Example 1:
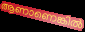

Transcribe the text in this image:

ആണാണെങ്കിൽ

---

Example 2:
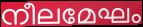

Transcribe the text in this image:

നീലമേഘം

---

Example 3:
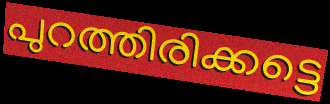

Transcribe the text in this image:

പുറത്തിരിക്കട്ടെ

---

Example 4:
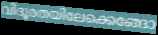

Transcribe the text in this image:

വിദൂരതയിലേക്കെങ്ങോ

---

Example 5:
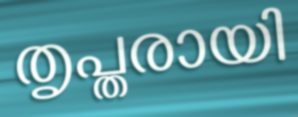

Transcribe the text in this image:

തൃപ്തരായി